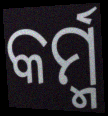
କର୍ମ୍ମ